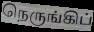
நெருங்கிப்